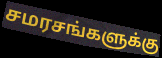
சமரசங்களுக்கு